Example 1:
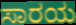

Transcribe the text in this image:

ಸಾರಯ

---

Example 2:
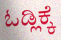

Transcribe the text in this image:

ಓಡ್ಲಿಕ್ಕೆ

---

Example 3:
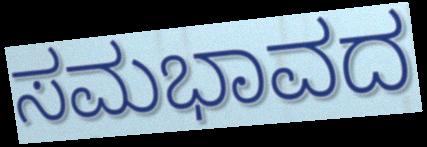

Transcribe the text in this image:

ಸಮಭಾವದ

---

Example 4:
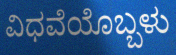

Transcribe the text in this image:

ವಿಧವೆಯೊಬ್ಬಳು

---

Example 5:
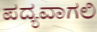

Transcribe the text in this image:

ಪದ್ಯವಾಗಲಿ